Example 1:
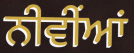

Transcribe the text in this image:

ਨੀਵੀਂਆਂ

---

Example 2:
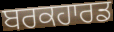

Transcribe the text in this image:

ਬਰਕਹਾਰਡ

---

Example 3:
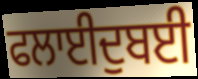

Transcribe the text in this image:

ਫਲਾਈਦੁਬਈ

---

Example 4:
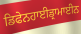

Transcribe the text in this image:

ਡਿਫੇਨਹਾਈਡ੍ਰਾਮਾਈਨ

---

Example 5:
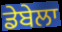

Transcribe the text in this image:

ਡੇਬੇਲਾ